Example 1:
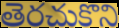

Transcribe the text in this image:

తెరచుకొని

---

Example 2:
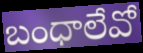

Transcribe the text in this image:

బంధాలేవో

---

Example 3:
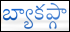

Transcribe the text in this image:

బ్యాకప్గా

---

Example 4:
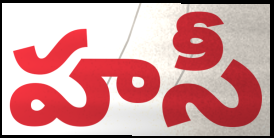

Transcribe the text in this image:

హసీ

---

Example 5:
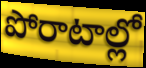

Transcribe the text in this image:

పోరాటాల్లో